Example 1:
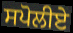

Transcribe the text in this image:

ਸਪੋਲੀਏ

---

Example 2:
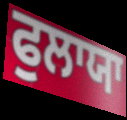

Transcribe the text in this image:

ਫੁਲਾਯਾ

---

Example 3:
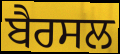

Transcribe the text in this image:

ਬੈਰਸਲ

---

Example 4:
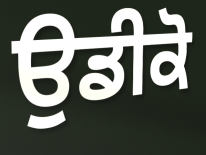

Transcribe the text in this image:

ਉਡੀਕੋ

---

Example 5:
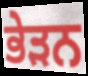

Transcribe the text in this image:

ਭੇੜਨ